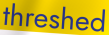
threshed